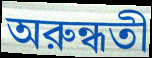
অরুন্ধতী